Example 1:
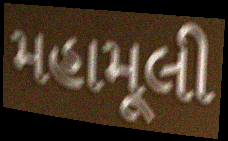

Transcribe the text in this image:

મહામૂલી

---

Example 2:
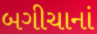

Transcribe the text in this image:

બગીચાનાં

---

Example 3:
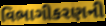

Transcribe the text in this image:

વિભાગીકરણની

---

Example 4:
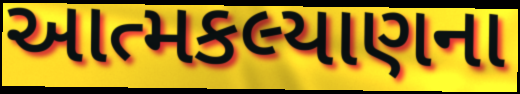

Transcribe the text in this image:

આત્મકલ્યાણના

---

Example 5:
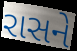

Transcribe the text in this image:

રાસને